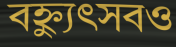
বহ্ন্যুৎসবও